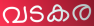
വടകര